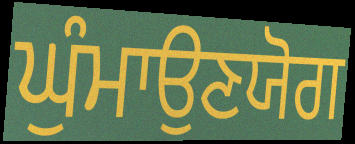
ਘੁੰਮਾਉਣਯੋਗ